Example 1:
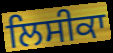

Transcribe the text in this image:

ਲਿਸੀਕਾ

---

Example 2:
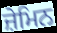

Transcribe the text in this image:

ਜ਼ੇਮਿਨ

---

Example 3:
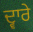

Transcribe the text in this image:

ਦ੍ਵਾਰੇ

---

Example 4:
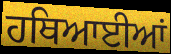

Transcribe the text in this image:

ਹਥਿਆਈਆਂ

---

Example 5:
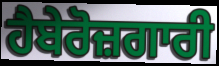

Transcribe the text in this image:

ਹੈਬੇਰੋਜ਼ਗਾਰੀ